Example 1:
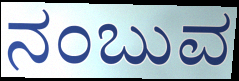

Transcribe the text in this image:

ನಂಬುವ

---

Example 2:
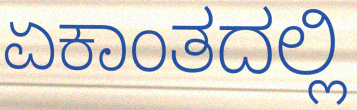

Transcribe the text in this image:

ಏಕಾಂತದಲ್ಲಿ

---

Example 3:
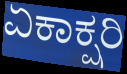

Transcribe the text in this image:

ಏಕಾಕ್ಷರಿ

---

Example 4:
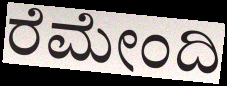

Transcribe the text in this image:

ರೆಮೇಂದಿ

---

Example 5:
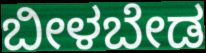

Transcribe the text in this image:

ಬೀಳಬೇಡ